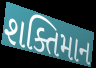
શક્તિમાન